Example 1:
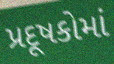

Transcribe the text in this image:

પ્રદૂષકોમાં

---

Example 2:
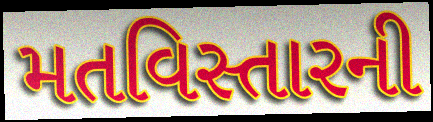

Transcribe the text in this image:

મતવિસ્તારની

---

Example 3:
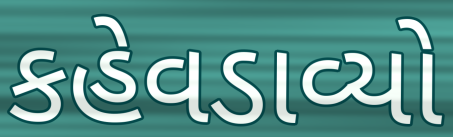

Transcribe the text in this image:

કહેવડાવ્યો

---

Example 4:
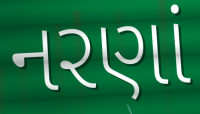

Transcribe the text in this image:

નરણાં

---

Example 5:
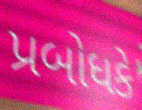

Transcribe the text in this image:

પ્રબોધકે